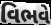
વિભવે